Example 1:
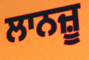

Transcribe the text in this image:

ਲਾਨਜ਼ੂ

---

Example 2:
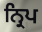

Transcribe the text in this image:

ਨ੍ਰਿਪ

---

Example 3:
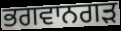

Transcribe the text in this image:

ਭਗਵਾਨਗੜ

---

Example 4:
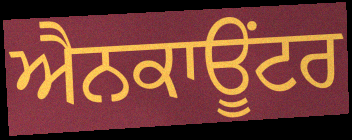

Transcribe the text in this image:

ਐਨਕਾਊਂਟਰ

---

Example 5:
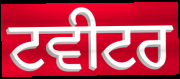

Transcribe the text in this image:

ਟਵੀਟਰ